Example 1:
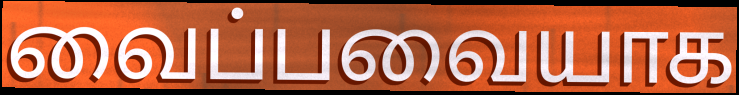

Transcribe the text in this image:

வைப்பவையாக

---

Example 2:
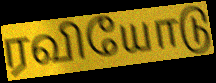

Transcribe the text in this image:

ரவியோடு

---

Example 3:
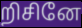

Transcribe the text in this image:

றிசினே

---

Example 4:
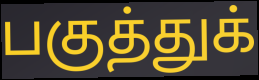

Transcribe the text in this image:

பகுத்துக்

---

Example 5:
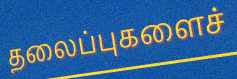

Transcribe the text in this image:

தலைப்புகளைச்